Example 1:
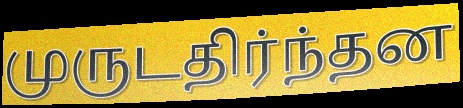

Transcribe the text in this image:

முருடதிர்ந்தன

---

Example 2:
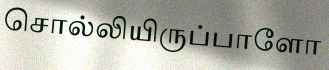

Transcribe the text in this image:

சொல்லியிருப்பாளோ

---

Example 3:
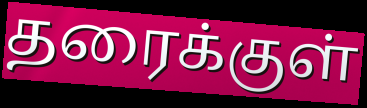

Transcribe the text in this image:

தரைக்குள்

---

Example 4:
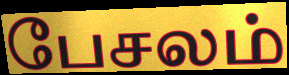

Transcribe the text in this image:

பேசலம்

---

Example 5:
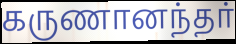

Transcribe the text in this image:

கருணானந்தர்